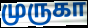
முருகா